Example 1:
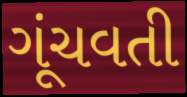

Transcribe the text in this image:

ગૂંચવતી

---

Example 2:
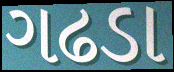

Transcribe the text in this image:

ગઢડા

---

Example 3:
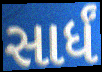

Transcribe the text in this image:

સાર્ધં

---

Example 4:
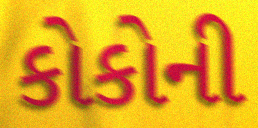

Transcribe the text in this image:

કોકોની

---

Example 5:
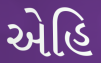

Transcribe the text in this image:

એહિ